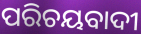
ପରିଚୟବାଦୀ